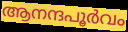
ആനന്ദപൂർവം